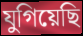
যুগিয়েছি